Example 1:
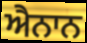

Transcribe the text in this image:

ਐਨਾਨ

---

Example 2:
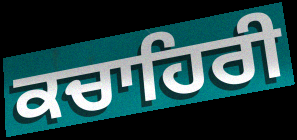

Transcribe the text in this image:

ਕਚਾਹਿਰੀ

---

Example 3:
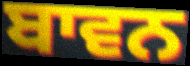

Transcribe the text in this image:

ਬਾਵਨ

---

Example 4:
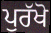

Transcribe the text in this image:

ਪੁਰੱਖੋ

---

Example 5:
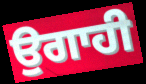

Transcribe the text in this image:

ਉਗਾਹੀ